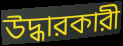
উদ্ধারকারী